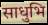
साधुभि